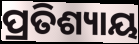
ପ୍ରତିଶ୍ୟାୟ